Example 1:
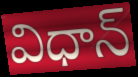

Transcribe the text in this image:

విధాన్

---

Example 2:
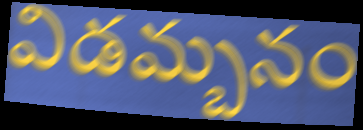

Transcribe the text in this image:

విడమ్బనం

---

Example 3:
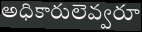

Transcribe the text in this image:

అధికారులెవ్వరూ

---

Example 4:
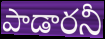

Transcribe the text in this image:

పాడారనీ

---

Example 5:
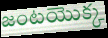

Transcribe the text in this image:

జంటయొక్క